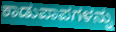
ಕಾಡುಪಾಪಗಳನ್ನು